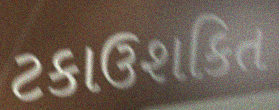
ટકાઉશકિત